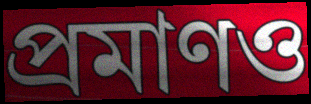
প্রমাণও